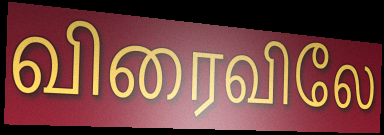
விரைவிலே